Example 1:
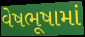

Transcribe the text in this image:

વેષભૂષામાં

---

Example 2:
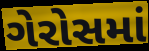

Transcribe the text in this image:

ગેરોસમાં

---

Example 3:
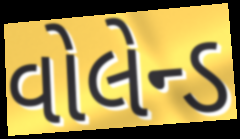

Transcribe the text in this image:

વોલેન્ડ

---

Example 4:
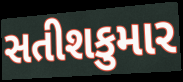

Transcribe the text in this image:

સતીશકુમાર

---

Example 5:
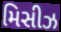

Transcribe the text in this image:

મિસીઝ